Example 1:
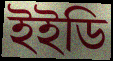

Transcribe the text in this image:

ইইডি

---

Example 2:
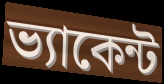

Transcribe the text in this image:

ভ্যাকেন্ট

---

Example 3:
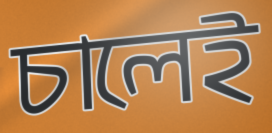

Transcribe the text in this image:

চালেই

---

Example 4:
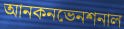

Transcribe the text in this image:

আনকনভেনশনাল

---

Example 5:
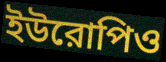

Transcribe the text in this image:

ইউরোপিও